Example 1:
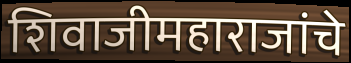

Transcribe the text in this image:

शिवाजीमहाराजांचे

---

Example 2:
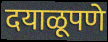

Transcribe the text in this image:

दयाळूपणे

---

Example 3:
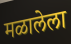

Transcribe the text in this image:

मळालेला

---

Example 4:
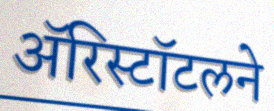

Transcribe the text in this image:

ॲरिस्टॉटलने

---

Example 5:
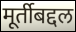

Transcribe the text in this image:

मूर्तीबद्दल